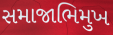
સમાજાભિમુખ